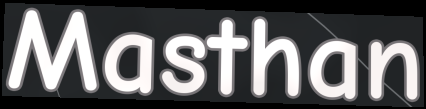
Masthan